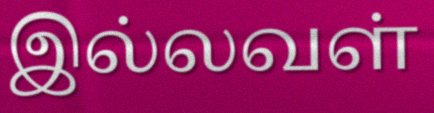
இல்லவள்